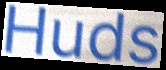
Huds